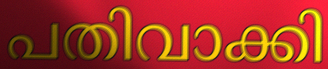
പതിവാക്കി